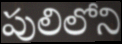
పులిలోని